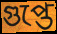
গুপ্তে